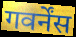
गवर्नेंस